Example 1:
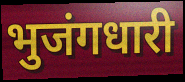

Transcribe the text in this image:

भुजंगधारी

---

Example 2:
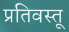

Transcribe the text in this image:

प्रतिवस्तू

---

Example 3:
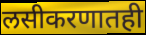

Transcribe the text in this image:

लसीकरणातही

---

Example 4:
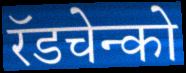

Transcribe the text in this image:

रॅडचेन्को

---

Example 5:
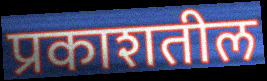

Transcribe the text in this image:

प्रकाशतील